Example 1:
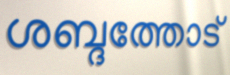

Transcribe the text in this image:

ശബ്ദത്തോട്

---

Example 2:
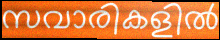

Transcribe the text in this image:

സവാരികളിൽ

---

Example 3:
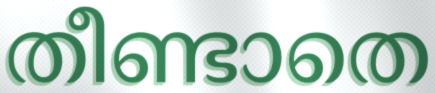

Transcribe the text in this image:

തീണ്ടാതെ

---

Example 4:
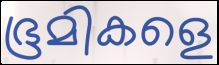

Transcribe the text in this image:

ഭൂമികളെ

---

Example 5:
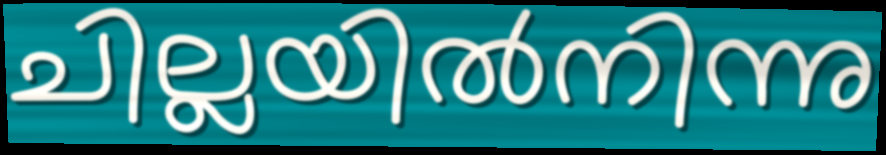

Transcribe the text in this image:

ചില്ലയിൽനിന്നു